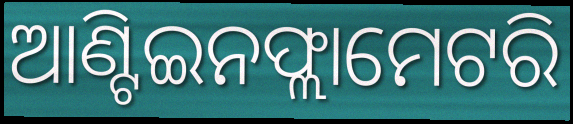
ଆଣ୍ଟିଇନଫ୍ଲାମେଟରି